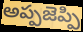
అప్పజెప్పి